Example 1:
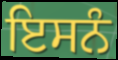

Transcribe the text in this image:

ਇਸਨੰ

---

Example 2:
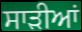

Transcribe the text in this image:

ਸਾਡ਼ੀਆਂ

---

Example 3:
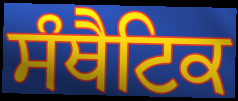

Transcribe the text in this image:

ਸੰਥੈਟਿਕ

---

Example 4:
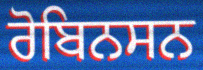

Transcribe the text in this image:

ਰੋਬਿਨਸਨ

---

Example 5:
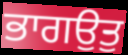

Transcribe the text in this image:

ਭਾਗਉਤੁ